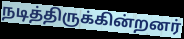
நடித்திருக்கின்றனர்